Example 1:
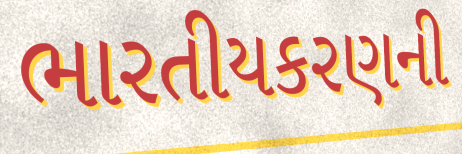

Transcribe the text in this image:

ભારતીયકરણની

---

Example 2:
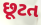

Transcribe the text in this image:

છૂટત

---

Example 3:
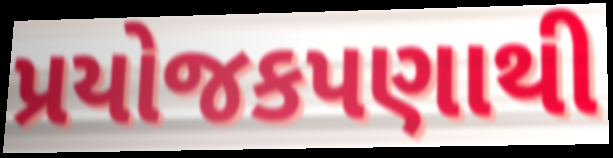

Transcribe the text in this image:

પ્રયોજકપણાથી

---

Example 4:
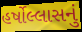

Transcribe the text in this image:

હર્ષોલ્લાસનું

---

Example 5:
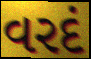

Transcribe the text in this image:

વરદં